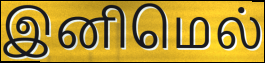
இனிமெல்